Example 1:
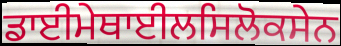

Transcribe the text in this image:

ਡਾਈਮੇਥਾਈਲਸਿਲੋਕਸੇਨ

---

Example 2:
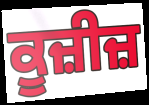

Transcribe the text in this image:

ਕੂਜ਼ੀਜ਼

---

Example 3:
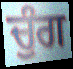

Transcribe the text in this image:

ਚੁੰਗ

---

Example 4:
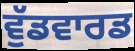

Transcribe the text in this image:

ਵੁੱਡਵਾਰਡ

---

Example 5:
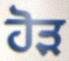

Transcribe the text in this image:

ਹੋੜ